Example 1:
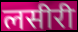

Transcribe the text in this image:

लसीरी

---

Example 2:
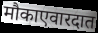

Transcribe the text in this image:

मौकाएवारदात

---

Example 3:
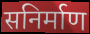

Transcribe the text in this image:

सनिर्माण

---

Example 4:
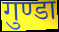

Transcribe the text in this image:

गुण्डा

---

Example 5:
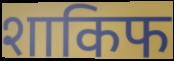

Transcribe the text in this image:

शाकिफ